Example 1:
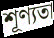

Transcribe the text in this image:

শূণ্যতা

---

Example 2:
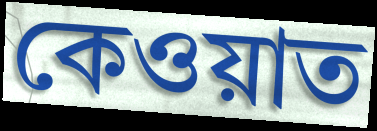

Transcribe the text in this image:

কেওয়াত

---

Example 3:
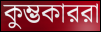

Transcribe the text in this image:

কুম্ভকাররা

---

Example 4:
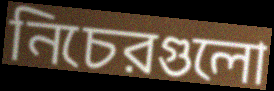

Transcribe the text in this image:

নিচেরগুলো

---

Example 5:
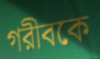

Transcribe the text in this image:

গরীবকে